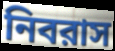
নিবরাস